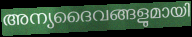
അന്യദൈവങ്ങളുമായി